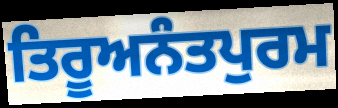
ਤਿਰੂਅਨੰਤਪੁਰਮ